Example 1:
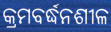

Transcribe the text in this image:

କ୍ରମବର୍ଦ୍ଧନଶୀଳ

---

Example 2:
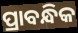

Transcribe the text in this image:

ପ୍ରାବନ୍ଧିକ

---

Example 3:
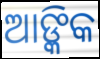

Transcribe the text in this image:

ଆଙ୍କିକ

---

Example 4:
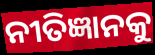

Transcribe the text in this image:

ନୀତିଜ୍ଞାନକୁ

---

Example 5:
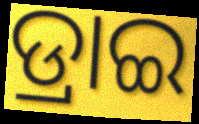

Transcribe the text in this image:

ଡ୍ରାଇ